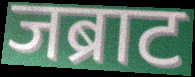
जब्राट